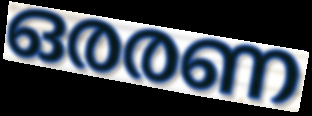
ഒരരണ